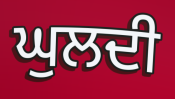
ਘੁਲਦੀ